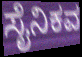
ಸೈನಿಕವ